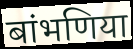
बांभणिया